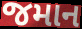
જમાન